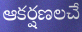
ఆకర్షణలచే